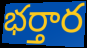
భర్తార